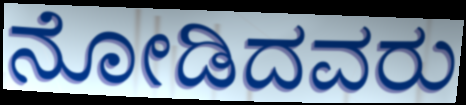
ನೋಡಿದವರು